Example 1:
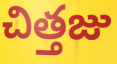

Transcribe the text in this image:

చిత్తజు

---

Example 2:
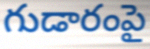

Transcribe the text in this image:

గుడారంపై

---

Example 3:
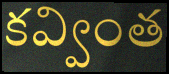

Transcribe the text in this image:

కవ్వింత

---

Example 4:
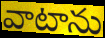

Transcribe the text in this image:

వాటాను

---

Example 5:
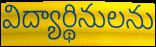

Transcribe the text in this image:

విద్యార్థినులను